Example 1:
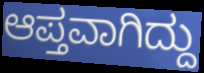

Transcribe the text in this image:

ಆಪ್ತವಾಗಿದ್ದು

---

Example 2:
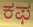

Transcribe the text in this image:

ಕಫ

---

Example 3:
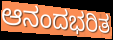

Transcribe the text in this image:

ಆನಂದಭರಿತ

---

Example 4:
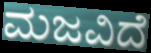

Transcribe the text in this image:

ಮಜವಿದೆ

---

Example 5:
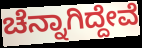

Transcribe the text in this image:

ಚೆನ್ನಾಗಿದ್ದೇವೆ